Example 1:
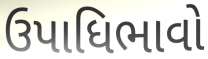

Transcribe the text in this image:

ઉપાધિભાવો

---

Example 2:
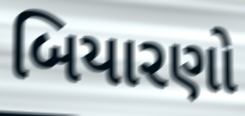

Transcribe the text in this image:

બિયારણો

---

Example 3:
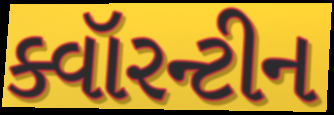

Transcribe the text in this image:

ક્વૉરન્ટીન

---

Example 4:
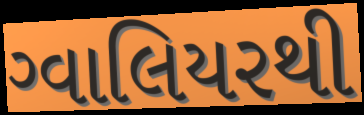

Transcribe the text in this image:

ગ્વાલિયરથી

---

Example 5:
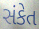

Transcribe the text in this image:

સંકેત